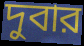
দুবার